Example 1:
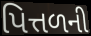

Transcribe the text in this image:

પિત્તળની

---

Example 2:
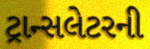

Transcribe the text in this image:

ટ્રાન્સલેટરની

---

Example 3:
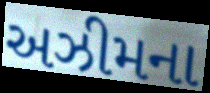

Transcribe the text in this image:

અઝીમના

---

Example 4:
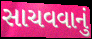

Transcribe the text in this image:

સાચવવાનું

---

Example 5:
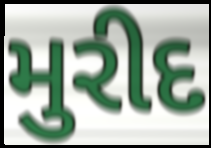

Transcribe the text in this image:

મુરીદ